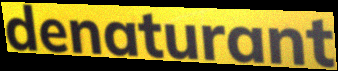
denaturant